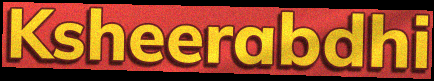
Ksheerabdhi